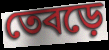
তেবড়ে